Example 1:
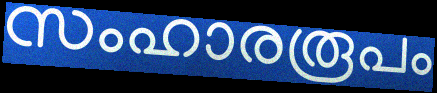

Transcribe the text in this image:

സംഹാരരൂപം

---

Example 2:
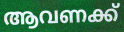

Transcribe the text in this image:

ആവണക്ക്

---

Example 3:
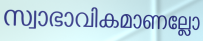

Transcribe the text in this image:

സ്വാഭാവികമാണല്ലോ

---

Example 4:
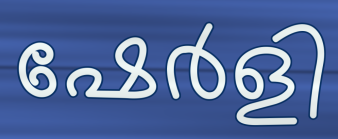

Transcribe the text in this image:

ഷേർളി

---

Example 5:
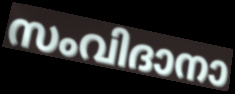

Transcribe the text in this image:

സംവിദാനാ